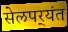
सेलपर्यंत